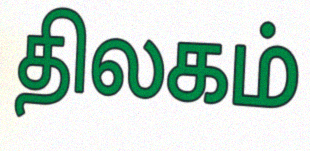
திலகம்